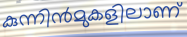
കുന്നിൻമുകളിലാണ്